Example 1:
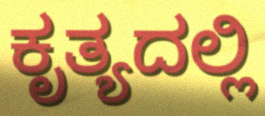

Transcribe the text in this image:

ಕೃತ್ಯದಲ್ಲಿ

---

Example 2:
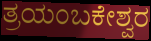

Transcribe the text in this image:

ತ್ರಯಂಬಕೇಶ್ವರ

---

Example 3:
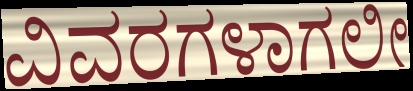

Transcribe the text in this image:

ವಿವರಗಳಾಗಲೀ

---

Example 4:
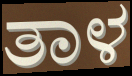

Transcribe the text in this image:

ತಾಳ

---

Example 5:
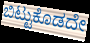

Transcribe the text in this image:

ಬಿಟ್ಟುಕೊಡದೇ